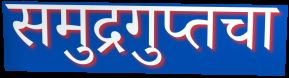
समुद्रगुप्तचा